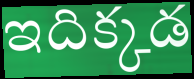
ఇదిక్కడ